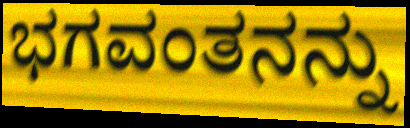
ಭಗವಂತನನ್ನು